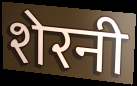
शेरनी